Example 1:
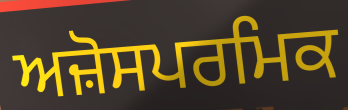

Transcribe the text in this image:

ਅਜ਼ੋਸਪਰਮਿਕ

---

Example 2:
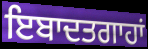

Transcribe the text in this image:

ਇਬਾਦਤਗਾਹਾਂ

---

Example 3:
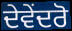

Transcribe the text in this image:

ਦੇਵੇਂਦਰੋ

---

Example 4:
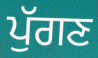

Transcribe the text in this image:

ਪੁੱਗਣ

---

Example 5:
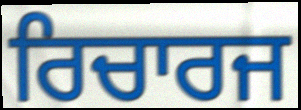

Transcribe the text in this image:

ਰਿਚਾਰਜ